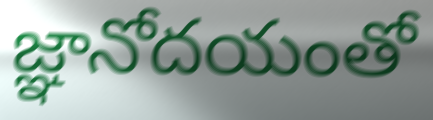
జ్ఞానోదయంతో